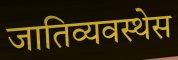
जातिव्यवस्थेस